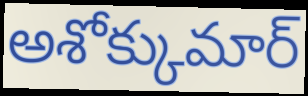
అశోక్కుమార్